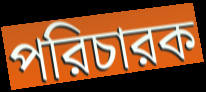
পরিচারক